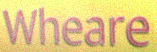
Wheare